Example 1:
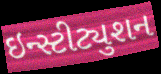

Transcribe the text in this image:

ઇન્સ્ટીટ્યુશન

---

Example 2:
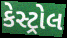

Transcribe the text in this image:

કેસ્ટ્રોલ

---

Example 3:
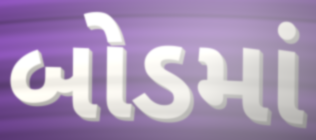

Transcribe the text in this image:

બોડમાં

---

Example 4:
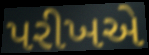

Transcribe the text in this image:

પરીખએ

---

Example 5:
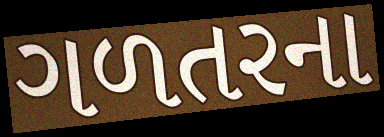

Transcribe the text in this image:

ગળતરના